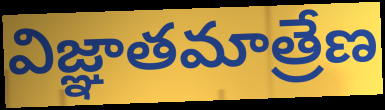
విజ్ఞాతమాత్రేణ